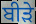
ਬੀੜੇ